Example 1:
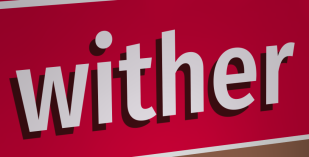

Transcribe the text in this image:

wither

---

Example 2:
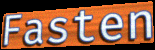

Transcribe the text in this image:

Fasten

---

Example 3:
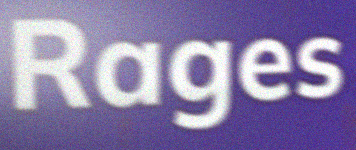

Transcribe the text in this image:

Rages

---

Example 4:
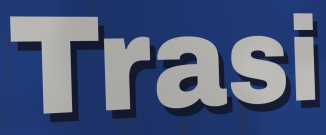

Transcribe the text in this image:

Trasi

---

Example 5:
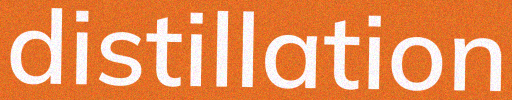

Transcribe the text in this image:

distillation